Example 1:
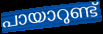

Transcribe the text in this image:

പായാറുണ്ട്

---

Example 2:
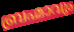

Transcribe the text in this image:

ബ്രഹ്മാവും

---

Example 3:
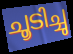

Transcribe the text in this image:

ചൂടിച്ചു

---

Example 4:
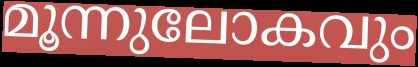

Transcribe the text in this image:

മൂന്നുലോകവും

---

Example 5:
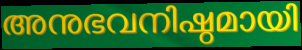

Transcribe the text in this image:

അനുഭവനിഷ്ഠമായി